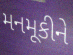
મનમૂકીને